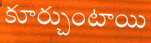
కూర్చుంటాయి